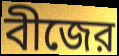
বীজের